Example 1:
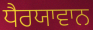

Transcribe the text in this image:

ਧੈਰਯਾਵਾਨ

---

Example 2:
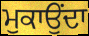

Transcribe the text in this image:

ਮੁਕਾਉਂਦਾ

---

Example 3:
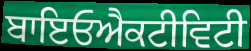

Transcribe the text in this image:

ਬਾਇਓਐਕਟੀਵਿਟੀ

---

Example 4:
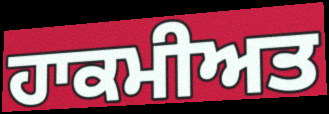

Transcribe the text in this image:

ਹਾਕਮੀਅਤ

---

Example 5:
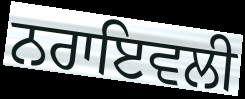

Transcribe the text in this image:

ਨਰਾਇਵਲੀ